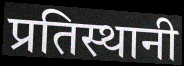
प्रतिस्थानी